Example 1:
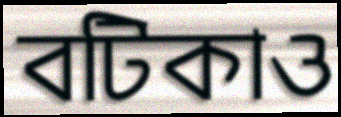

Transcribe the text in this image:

বটিকাও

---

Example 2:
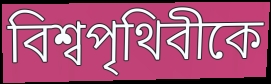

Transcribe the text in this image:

বিশ্বপৃথিবীকে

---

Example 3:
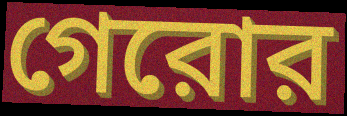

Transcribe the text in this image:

গেরোর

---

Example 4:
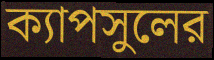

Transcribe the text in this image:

ক্যাপসুলের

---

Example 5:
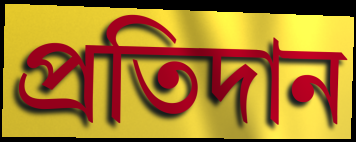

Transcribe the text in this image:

প্রতিদান